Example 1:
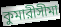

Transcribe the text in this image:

কুমারীসীমা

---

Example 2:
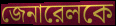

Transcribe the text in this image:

জেনারেলকে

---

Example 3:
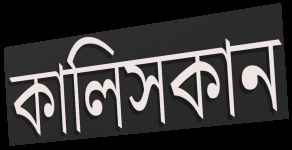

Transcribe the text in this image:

কালিসকান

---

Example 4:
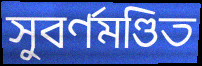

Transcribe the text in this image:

সুবর্ণমণ্ডিত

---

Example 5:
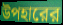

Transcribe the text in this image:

উপহারের